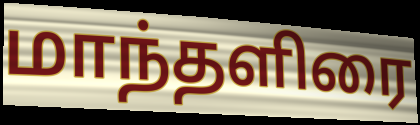
மாந்தளிரை